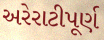
અરેરાટીપૂર્ણ